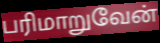
பரிமாறுவேன்